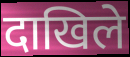
दाखिले